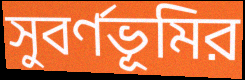
সুবর্ণভূমির